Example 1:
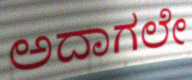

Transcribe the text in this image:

ಅದಾಗಲೇ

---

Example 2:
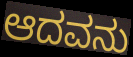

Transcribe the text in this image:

ಆದವನು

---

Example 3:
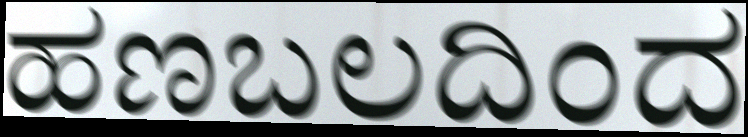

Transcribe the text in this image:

ಹಣಬಲದಿಂದ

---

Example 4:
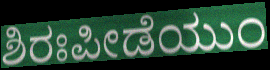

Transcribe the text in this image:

ಶಿರಃಪೀಡೆಯುಂ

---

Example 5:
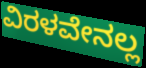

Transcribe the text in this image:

ವಿರಳವೇನಲ್ಲ